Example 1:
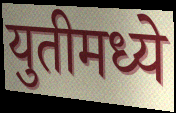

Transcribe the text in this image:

युतीमध्ये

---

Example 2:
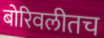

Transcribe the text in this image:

बोरिवलीतच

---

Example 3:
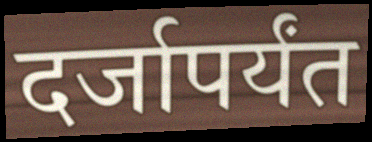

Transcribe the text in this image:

दर्जापर्यंत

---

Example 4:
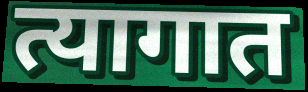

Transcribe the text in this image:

त्यागात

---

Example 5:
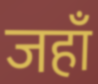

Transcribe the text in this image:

जहाँ